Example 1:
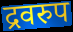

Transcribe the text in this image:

द्रवरुप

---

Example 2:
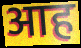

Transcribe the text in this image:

आह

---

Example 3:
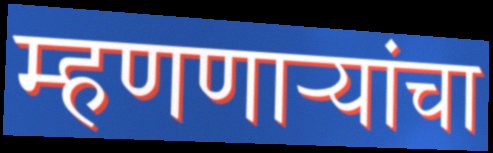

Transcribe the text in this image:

म्हणणाऱ्यांचा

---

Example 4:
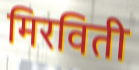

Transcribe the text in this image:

मिरविती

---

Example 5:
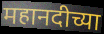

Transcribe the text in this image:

महानदीच्या